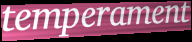
temperament